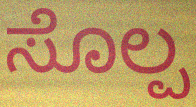
ಸೊಲ್ಪ